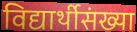
विद्यार्थीसंख्या